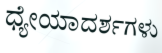
ಧ್ಯೇಯಾದರ್ಶಗಳು